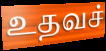
உதவச்